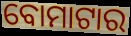
ବୋମାଟାର